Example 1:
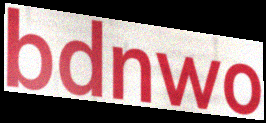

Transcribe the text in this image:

bdnwo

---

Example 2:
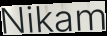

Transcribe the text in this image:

Nikam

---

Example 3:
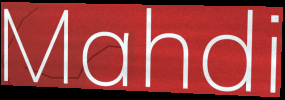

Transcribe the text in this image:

Mahdi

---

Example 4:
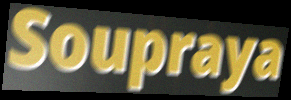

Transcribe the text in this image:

Soupraya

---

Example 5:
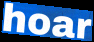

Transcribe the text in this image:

hoar